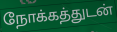
நோக்கத்துடன்